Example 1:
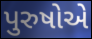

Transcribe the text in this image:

પુરુષોએ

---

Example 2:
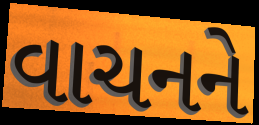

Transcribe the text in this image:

વાચનને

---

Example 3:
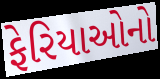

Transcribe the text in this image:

ફેરિયાઓનો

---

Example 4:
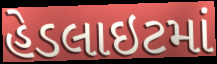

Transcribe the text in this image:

હેડલાઇટમાં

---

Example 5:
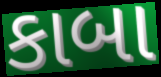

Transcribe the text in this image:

કાબા